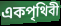
একপৃথিবী